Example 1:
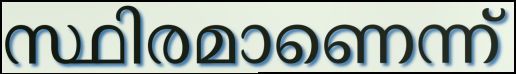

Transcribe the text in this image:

സ്ഥിരമാണെന്ന്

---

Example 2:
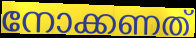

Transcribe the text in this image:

നോക്കണത്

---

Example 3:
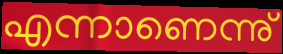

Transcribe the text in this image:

എന്നാണെന്നു്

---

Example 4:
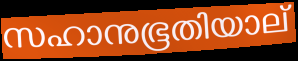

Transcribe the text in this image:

സഹാനുഭൂതിയാല്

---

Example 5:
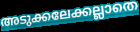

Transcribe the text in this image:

അടുക്കലേക്കല്ലാതെ